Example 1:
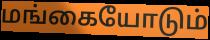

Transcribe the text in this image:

மங்கையோடும்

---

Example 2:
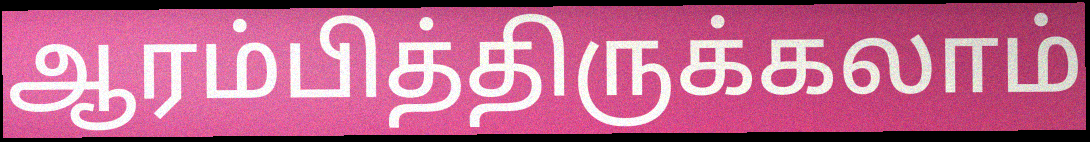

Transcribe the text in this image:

ஆரம்பித்திருக்கலாம்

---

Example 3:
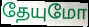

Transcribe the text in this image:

தேயுமோ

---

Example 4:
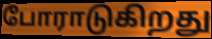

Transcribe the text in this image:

போராடுகிறது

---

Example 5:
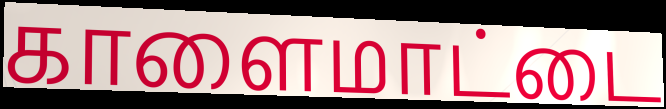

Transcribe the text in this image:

காளைமாட்டை